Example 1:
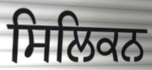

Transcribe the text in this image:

ਸਿਲਿਕਨ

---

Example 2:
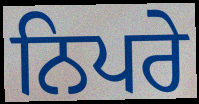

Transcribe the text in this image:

ਨਿਪਰੇ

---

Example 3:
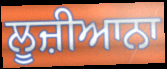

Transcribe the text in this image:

ਲੂਜ਼ੀਆਨਾ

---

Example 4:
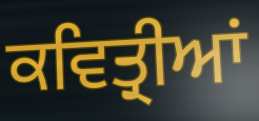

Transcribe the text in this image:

ਕਵਿਤ੍ਰੀਆਂ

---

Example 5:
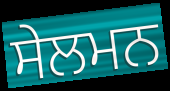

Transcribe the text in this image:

ਸੇਲਮਨ